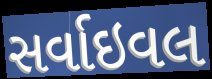
સર્વાઇવલ